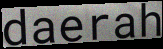
daerah